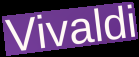
Vivaldi